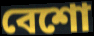
বেশো